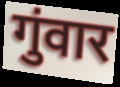
गुंवार